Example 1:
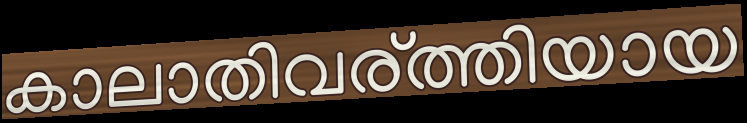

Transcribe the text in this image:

കാലാതിവര്ത്തിയായ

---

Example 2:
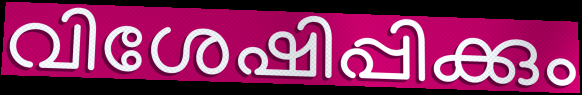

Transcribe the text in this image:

വിശേഷിപ്പിക്കും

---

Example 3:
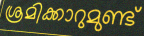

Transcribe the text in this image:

ശ്രമിക്കാറുമുണ്ട്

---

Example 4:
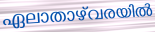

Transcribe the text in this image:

ഏലാതാഴ്‌വരയിൽ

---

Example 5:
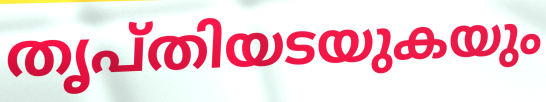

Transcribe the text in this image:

തൃപ്തിയടയുകയും